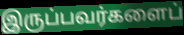
இருப்பவர்களைப்